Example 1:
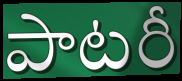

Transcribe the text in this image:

పాటరీ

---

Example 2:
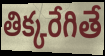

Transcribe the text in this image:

తిక్కరేగితే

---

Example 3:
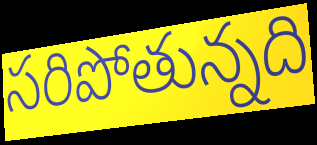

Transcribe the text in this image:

సరిపోతున్నది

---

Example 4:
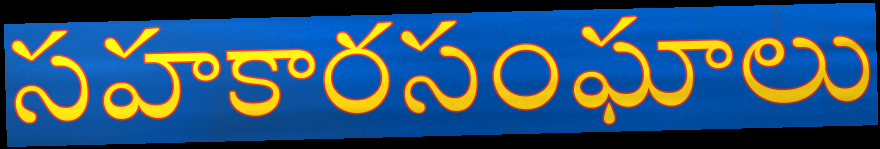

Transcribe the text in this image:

సహకారసంఘాలు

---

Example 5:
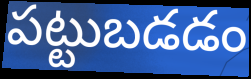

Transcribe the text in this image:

పట్టుబడడం